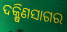
ଦକ୍ଷିଣସାଗର